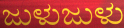
ಜುಳುಜುಳು